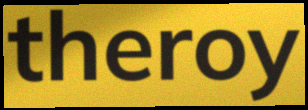
theroy